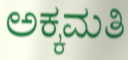
ಅಕ್ಕಮತಿ